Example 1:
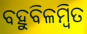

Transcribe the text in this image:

ବହୁବିଳମ୍ବିତ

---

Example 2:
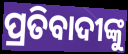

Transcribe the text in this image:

ପ୍ରତିବାଦୀଙ୍କୁ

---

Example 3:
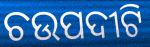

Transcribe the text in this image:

ଚଉପଦୀଟି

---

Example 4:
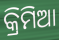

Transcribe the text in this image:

କ୍ରିମିଆ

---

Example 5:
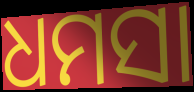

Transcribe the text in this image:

ଧମସା